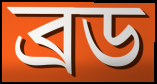
ব্ৰড